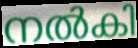
നൽകി